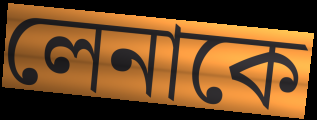
লেনাকে